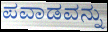
ಪವಾಡವನ್ನು